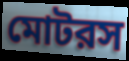
মোটরস